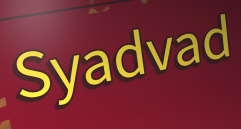
Syadvad